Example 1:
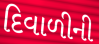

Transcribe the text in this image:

દિવાળીની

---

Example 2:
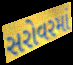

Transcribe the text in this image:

સરોવરમાં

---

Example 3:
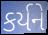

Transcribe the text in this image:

કર્યને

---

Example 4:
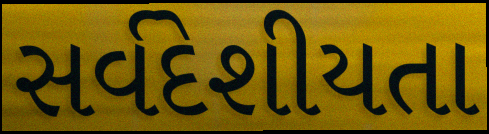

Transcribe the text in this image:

સર્વદેશીયતા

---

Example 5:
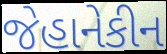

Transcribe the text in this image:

જેહાનેકીન